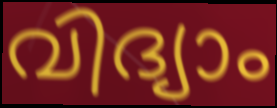
വിദ്യാം